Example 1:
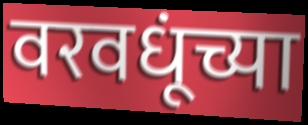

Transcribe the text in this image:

वरवधूंच्या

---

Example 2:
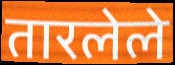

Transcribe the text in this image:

तारलेले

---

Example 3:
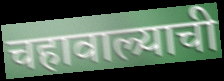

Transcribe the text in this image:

चहावाल्याची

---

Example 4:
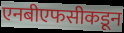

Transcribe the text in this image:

एनबीएफसीकडून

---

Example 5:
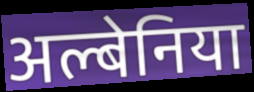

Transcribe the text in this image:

अल्बेनिया